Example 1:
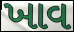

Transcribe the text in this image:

ખાવ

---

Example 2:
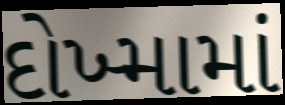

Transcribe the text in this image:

દોખ્મામાં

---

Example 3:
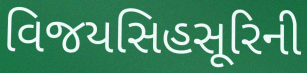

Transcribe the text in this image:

વિજયસિહસૂરિની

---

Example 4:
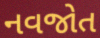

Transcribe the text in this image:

નવજોત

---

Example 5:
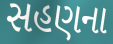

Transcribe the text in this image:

સહણના